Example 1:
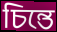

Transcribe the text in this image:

চিন্তে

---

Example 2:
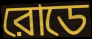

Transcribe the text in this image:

রোডে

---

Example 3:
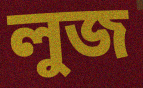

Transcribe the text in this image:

লুজ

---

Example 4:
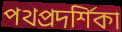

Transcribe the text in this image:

পথপ্রদর্শিকা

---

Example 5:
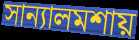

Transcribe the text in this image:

সান্যালমশায়